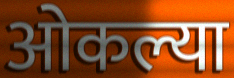
ओकल्या